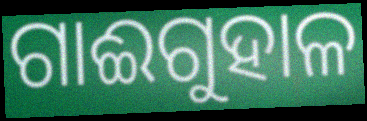
ଗାଈଗୁହାଳ